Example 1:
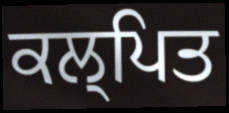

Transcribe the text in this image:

ਕਲ੍ਪਿਤ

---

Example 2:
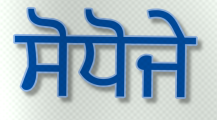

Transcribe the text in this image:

ਸੋਧੋਜੇ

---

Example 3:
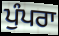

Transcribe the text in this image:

ਪੁੰਪਰਾ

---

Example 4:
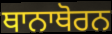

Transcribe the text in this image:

ਥਾਨਾਥੋਰਨ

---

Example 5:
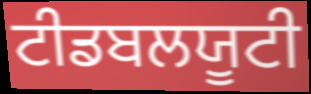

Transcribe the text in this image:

ਟੀਡਬਲਯੂਟੀ